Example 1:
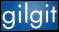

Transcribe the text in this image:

gilgit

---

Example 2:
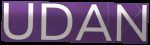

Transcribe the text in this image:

UDAN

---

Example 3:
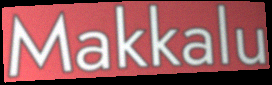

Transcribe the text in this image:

Makkalu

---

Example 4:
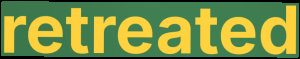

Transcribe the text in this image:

retreated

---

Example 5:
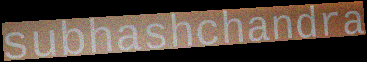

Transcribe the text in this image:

subhashchandra